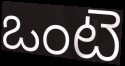
ఒంటె